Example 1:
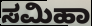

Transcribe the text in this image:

ಸಮಿಹಾ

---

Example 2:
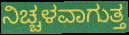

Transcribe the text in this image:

ನಿಚ್ಚಳವಾಗುತ್ತ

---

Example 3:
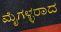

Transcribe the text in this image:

ಮೈಗಳ್ಳರಾದ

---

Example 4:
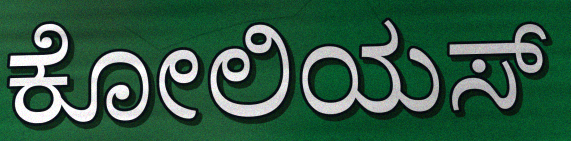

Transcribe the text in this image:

ಕೋಲಿಯಸ್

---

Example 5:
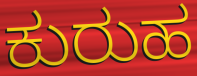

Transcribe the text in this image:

ಕುರುಹ